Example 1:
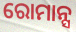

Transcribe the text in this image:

ରୋମାନ୍ସ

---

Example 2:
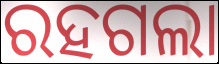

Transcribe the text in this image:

ରହଗଲା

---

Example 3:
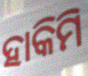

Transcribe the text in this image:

ହାକିମି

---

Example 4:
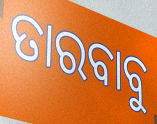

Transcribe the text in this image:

ତାରବାବୁ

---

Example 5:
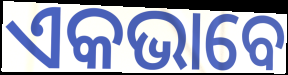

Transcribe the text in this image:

ଏକଭାବେ